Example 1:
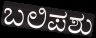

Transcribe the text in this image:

ಬಲಿಪಶು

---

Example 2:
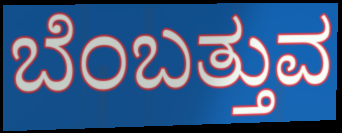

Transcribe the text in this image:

ಬೆಂಬತ್ತುವ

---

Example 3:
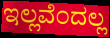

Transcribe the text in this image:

ಇಲ್ಲವೆಂದಲ್ಲ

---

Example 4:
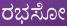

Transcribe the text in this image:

ರಭಸೋ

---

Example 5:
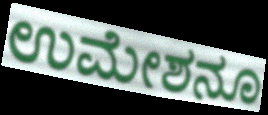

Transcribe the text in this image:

ಉಮೇಶನೂ